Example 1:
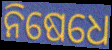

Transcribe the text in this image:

ନିଷେଧେ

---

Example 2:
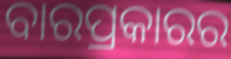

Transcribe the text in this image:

ବାରପ୍ରକାରର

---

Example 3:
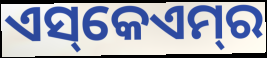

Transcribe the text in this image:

ଏସ୍‌କେଏମ୍‌ର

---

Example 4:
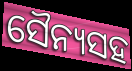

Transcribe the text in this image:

ସୈନ୍ୟସହ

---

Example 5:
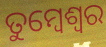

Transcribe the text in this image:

ତୁମ୍ବେଶ୍ଵର